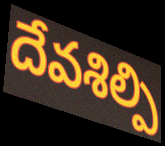
దేవశిల్పి